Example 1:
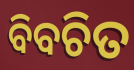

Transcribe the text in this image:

ବିବଚିତ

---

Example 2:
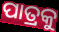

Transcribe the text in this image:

ପାତ୍ରକୁ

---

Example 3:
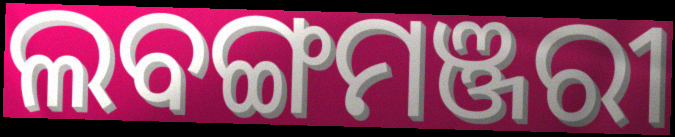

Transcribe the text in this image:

ଲବଙ୍ଗମଞ୍ଜରୀ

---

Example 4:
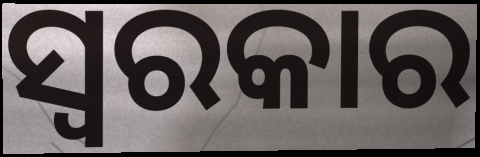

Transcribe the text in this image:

ସ୍ୱରକାର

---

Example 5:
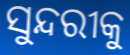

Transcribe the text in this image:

ସୁନ୍ଦରୀକୁ